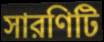
সারণিটি